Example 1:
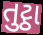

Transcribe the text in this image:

તુટ્ઠા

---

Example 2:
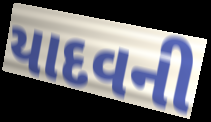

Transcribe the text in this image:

યાદવની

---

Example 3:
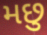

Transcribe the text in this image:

મછુ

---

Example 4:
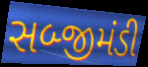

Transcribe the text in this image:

સબ્જીમંડી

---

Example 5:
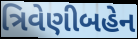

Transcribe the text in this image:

ત્રિવેણીબહેન